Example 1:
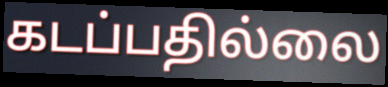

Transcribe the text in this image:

கடப்பதில்லை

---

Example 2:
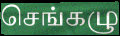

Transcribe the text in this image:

செங்கழு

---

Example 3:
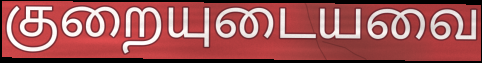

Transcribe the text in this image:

குறையுடையவை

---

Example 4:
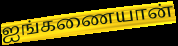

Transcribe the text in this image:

ஐங்கணையான்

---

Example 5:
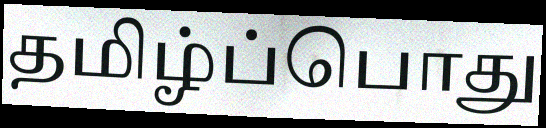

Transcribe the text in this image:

தமிழ்ப்பொது